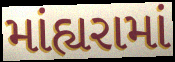
માંહ્યરામાં